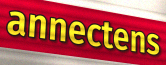
annectens